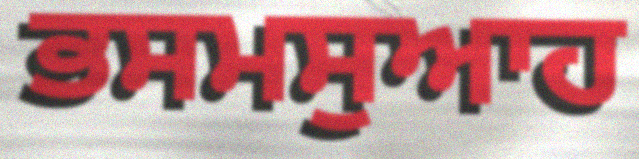
ਭਸਮਸੁਆਹ